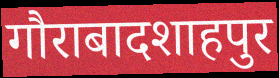
गौराबादशाहपुर